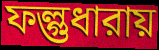
ফল্গুধারায়